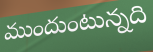
ముందుంటున్నది